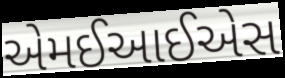
એમઈઆઈએસ